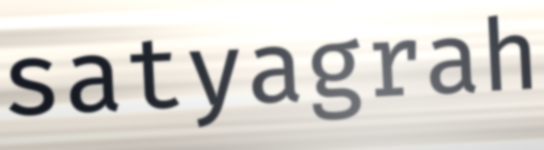
satyagrah